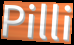
Pilli